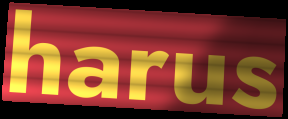
harus